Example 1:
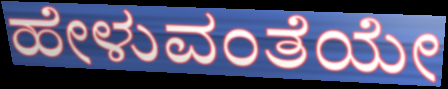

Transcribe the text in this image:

ಹೇಳುವಂತೆಯೇ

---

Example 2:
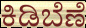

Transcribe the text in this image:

ಕಿಡಿಬೆಣೆ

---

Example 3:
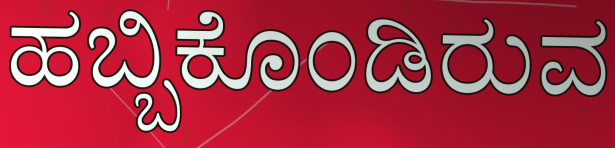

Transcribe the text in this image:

ಹಬ್ಬಿಕೊಂಡಿರುವ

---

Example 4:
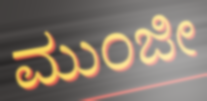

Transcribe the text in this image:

ಮುಂಜೀ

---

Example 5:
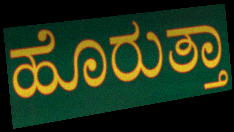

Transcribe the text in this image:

ಹೊರುತ್ತಾ